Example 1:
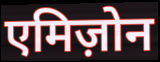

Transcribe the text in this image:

एमिज़ोन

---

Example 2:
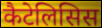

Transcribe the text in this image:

कैटेलिसिस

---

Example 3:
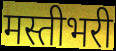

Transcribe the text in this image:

मस्तीभरी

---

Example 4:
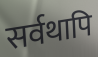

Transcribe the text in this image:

सर्वथापि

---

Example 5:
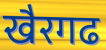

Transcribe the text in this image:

खैरगढ